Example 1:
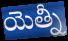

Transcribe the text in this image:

యెత్నీ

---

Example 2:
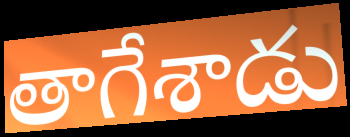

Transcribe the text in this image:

తాగేశాడు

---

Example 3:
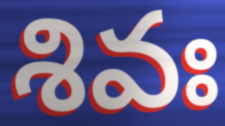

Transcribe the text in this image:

శివః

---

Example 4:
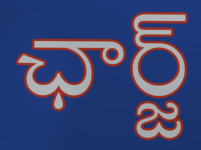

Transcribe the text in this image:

ఛార్జ్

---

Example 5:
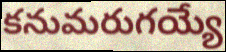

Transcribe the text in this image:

కనుమరుగయ్యే